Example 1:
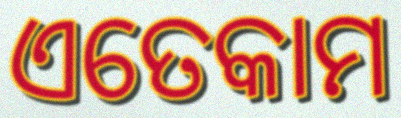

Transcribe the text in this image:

ଏତେକାମ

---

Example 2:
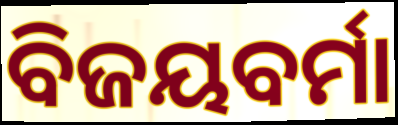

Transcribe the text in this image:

ବିଜୟବର୍ମା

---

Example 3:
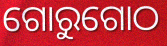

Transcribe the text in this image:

ଗୋରୁଗୋଠ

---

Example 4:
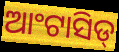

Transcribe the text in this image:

ଆଂଟାସିଡ୍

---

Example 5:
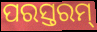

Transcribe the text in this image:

ପରସ୍ତରମ୍